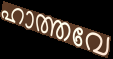
ഹാത്തവേ